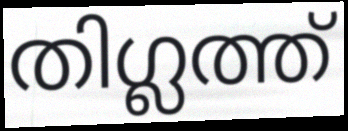
തിഗ്ലത്ത്